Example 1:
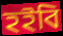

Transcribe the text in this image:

হইবি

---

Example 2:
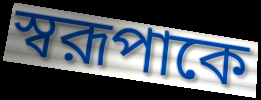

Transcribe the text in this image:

স্বরূপাকে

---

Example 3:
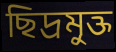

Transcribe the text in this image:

ছিদ্রমুক্ত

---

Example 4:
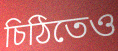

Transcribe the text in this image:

চিঠিতেও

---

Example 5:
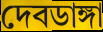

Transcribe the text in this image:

দেবডাঙ্গা